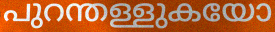
പുറന്തള്ളുകയോ